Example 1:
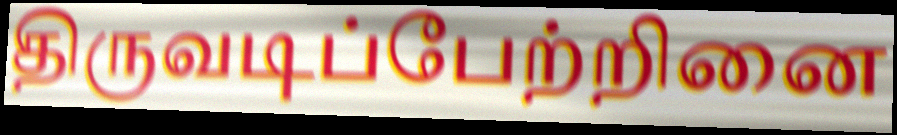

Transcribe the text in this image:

திருவடிப்பேற்றினை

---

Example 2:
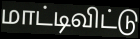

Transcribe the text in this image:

மாட்டிவிட்டு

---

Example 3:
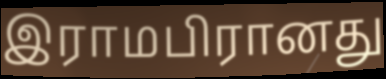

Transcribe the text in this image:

இராமபிரானது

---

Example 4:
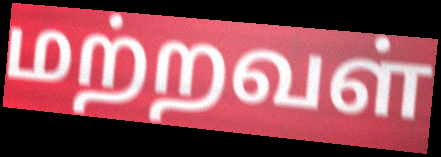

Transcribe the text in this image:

மற்றவள்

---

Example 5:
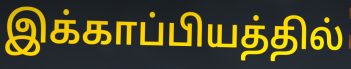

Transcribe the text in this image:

இக்காப்பியத்தில்